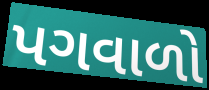
પગવાળો